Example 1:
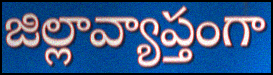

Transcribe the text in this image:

జిల్లావ్యాప్తంగా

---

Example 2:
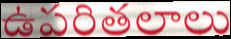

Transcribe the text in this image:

ఉపరితలాలు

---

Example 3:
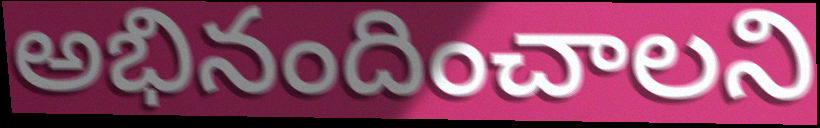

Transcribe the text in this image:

అభినందించాలని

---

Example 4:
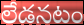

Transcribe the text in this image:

లేడనటం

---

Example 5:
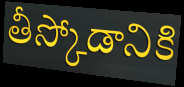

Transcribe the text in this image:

తీస్కోడానికి